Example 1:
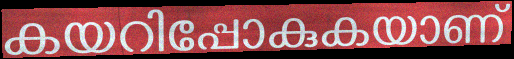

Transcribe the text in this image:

കയറിപ്പോകുകയാണ്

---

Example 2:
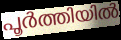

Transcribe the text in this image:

പൂർത്തിയിൽ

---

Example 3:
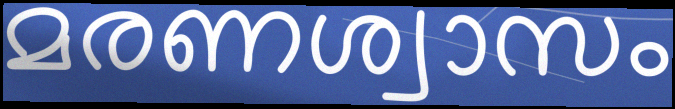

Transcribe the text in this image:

മരണശ്വാസം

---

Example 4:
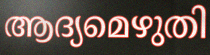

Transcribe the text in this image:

ആദ്യമെഴുതി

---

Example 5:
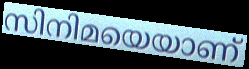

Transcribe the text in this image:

സിനിമയെയാണ്